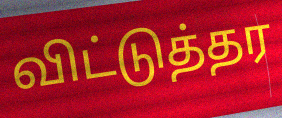
விட்டுத்தர